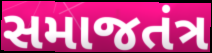
સમાજતંત્ર